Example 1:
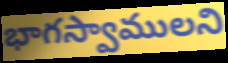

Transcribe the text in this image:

భాగస్వాములని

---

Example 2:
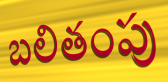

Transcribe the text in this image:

బలితంపు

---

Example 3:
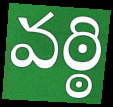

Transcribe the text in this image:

వఠ్ఠి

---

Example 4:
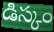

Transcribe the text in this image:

డిస్కం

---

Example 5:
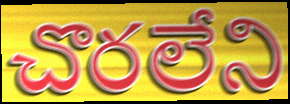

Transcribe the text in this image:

చొరలేని